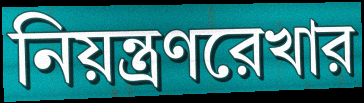
নিয়ন্ত্রণরেখার